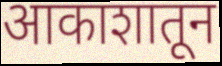
आकाशातून